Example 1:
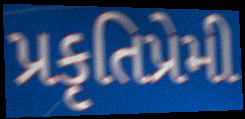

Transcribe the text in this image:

પ્રકૃતિપ્રેમી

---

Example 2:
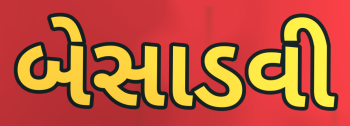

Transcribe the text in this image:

બેસાડવી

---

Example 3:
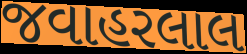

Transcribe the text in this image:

જવાહરલાલ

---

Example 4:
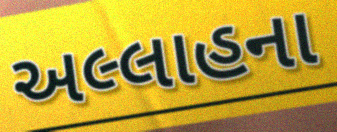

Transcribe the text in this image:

અલ્લાહના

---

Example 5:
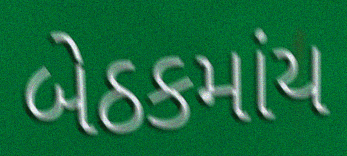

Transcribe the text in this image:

બેઠકમાંય